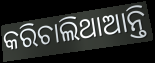
କରିଚାଲିଥାଆନ୍ତି